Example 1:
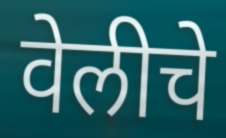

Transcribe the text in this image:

वेलीचे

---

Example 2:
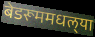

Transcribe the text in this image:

बेडरूममधल्या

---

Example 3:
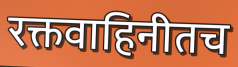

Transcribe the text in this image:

रक्तवाहिनीतच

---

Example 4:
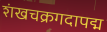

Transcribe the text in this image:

शंखचक्रगदापद्म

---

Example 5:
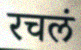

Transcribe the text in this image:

रचलं